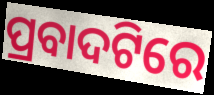
ପ୍ରବାଦଟିରେ